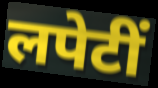
लपेटीं